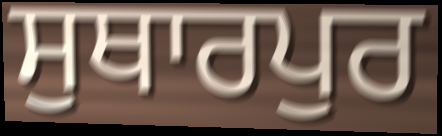
ਸੁਥਾਰਪੁਰ